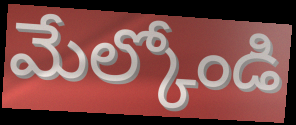
మేల్కోండి